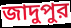
জাদুপুর